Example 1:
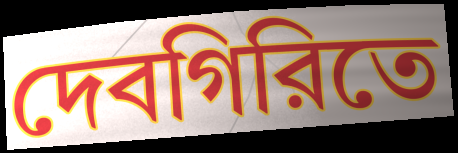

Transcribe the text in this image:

দেবগিরিতে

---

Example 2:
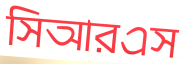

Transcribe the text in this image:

সিআরএস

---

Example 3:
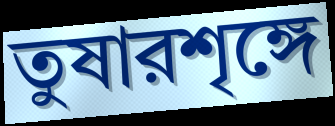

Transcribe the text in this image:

তুষারশৃঙ্গে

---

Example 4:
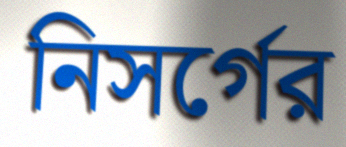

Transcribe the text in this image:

নিসর্গের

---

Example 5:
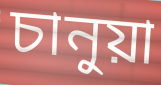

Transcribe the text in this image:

চানুয়া